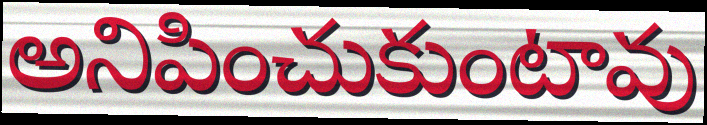
అనిపించుకుంటావు